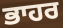
ਭਾਹਰ